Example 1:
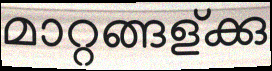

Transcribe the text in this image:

മാറ്റങ്ങള്ക്കു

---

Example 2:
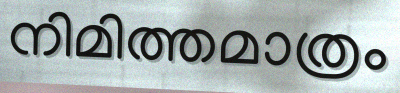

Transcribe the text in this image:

നിമിത്തമാത്രം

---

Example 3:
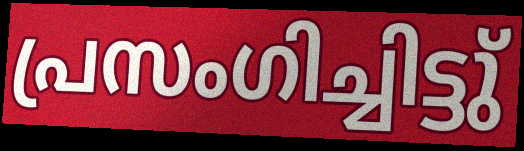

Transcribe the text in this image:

പ്രസംഗിച്ചിട്ടു്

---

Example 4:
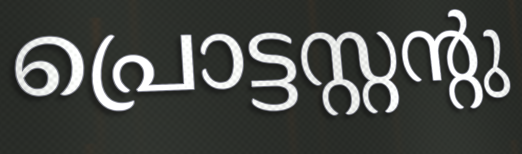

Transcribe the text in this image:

പ്രൊട്ടസ്റ്റന്റു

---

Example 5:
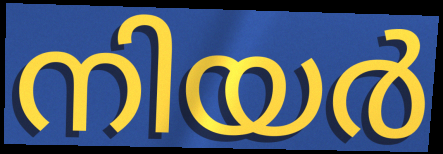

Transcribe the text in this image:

നിയർ